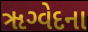
ૠગ્વેદના